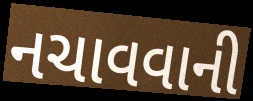
નચાવવાની